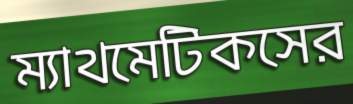
ম্যাথমেটিকসের